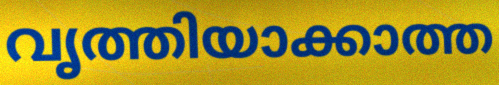
വൃത്തിയാക്കാത്ത